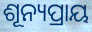
ଶୂନ୍ୟପ୍ରାୟ